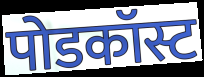
पोडकॉस्ट